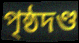
পৃষ্ঠদণ্ড